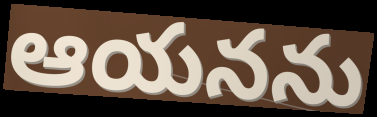
ఆయనను